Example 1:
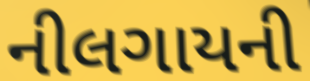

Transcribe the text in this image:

નીલગાયની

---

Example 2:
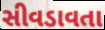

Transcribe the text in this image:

સીવડાવતા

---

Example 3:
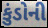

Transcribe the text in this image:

કુંડોની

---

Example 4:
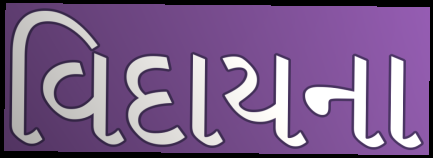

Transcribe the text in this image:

વિદાયના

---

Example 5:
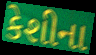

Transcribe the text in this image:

કેશીના